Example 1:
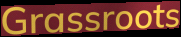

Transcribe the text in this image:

Grassroots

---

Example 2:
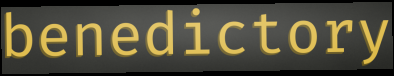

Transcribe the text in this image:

benedictory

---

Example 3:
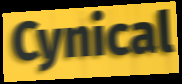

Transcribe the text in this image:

Cynical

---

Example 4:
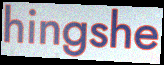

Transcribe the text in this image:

hingshe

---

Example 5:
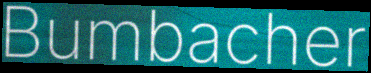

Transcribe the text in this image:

Bumbacher